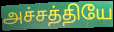
அச்சத்தியே